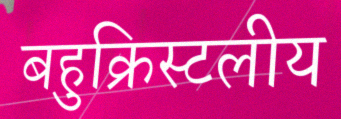
बहुक्रिस्टलीय